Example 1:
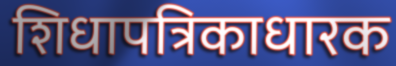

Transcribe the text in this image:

शिधापत्रिकाधारक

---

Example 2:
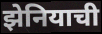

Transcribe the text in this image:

झेनियाची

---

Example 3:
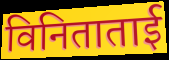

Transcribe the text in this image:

विनिताताई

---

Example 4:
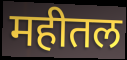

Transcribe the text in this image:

महीतल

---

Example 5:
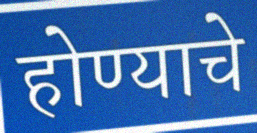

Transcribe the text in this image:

होण्याचे